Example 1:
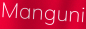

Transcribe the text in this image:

Manguni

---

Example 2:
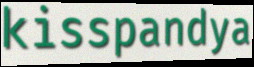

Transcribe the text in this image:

kisspandya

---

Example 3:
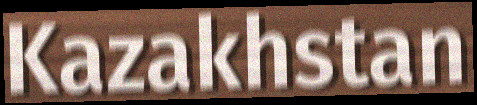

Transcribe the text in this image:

Kazakhstan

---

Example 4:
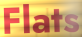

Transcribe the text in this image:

Flats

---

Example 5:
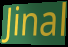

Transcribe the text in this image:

Jinal